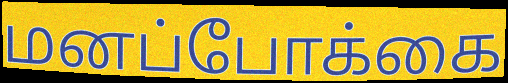
மனப்போக்கை